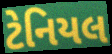
ટેનિયલ